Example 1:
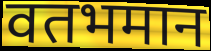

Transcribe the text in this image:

वतभमान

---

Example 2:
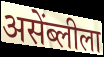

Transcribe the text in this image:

असेंब्लीला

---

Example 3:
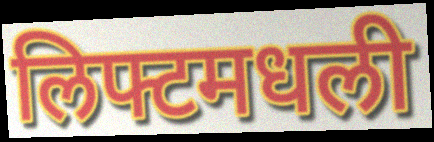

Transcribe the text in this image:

लिफ्टमधली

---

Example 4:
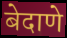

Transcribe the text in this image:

बेदाणे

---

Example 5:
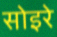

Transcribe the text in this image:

सोइरे